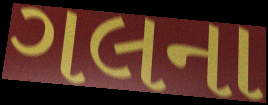
ગલના